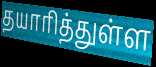
தயாரித்துள்ள